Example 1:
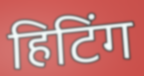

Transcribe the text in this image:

हिटिंग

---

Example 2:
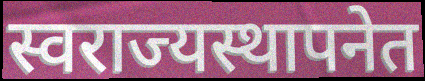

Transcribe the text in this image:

स्वराज्यस्थापनेत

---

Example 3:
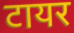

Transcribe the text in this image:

टायर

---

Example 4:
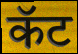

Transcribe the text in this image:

कॅट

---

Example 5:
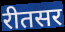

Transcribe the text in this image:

रीतसर